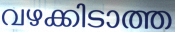
വഴക്കിടാത്ത